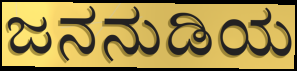
ಜನನುಡಿಯ